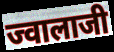
ज्वालाजी